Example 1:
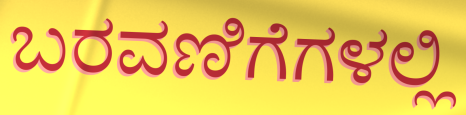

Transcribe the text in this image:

ಬರವಣಿಗೆಗಳಲ್ಲಿ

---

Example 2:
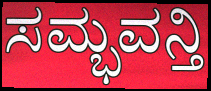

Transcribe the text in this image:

ಸಮ್ಭವನ್ತಿ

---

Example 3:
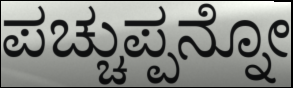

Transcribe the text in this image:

ಪಚ್ಚುಪ್ಪನ್ನೋ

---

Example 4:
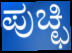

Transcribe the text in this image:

ಪುಚ್ಛಿ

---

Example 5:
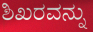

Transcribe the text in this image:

ಶಿಖರವನ್ನು